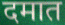
दमात